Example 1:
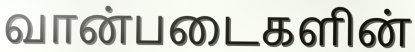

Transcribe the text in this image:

வான்படைகளின்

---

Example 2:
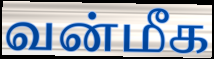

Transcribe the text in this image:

வன்மீக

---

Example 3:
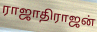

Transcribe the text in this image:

ராஜாதிராஜன்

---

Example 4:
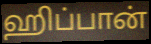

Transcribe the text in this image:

ஹிப்பான்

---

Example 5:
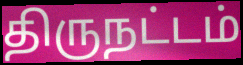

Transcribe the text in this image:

திருநட்டம்